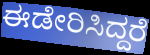
ಈಡೇರಿಸಿದ್ದರೆ